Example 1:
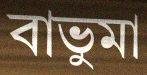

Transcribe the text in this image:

বাভুমা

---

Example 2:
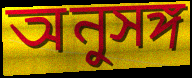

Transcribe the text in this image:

অনুসঙ্গ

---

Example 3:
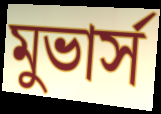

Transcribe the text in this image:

মুভার্স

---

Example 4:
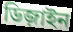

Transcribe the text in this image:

ডিজ়াইন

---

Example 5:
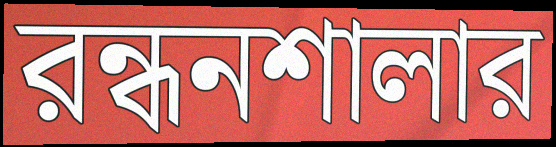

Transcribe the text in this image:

রন্ধনশালার